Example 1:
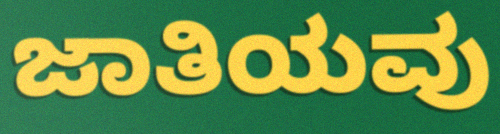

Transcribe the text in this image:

ಜಾತಿಯವು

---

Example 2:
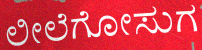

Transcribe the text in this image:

ಲೀಲೆಗೋಸುಗ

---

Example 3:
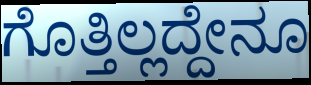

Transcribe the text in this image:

ಗೊತ್ತಿಲ್ಲದ್ದೇನೂ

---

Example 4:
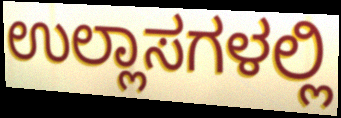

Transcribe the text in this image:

ಉಲ್ಲಾಸಗಳಲ್ಲಿ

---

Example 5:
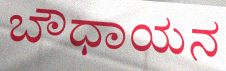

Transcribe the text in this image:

ಬೌಧಾಯನ